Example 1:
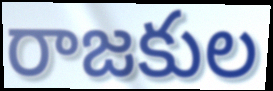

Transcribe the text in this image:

రాజకుల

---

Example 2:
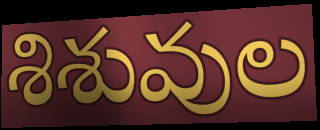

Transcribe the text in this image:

శిశువుల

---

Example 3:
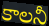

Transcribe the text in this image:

కాలనీ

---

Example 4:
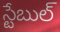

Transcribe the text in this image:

స్టేబుల్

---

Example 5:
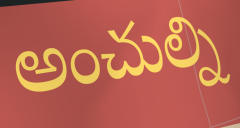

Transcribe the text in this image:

అంచుల్ని